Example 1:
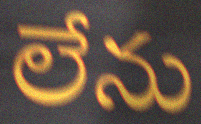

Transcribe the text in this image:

లేను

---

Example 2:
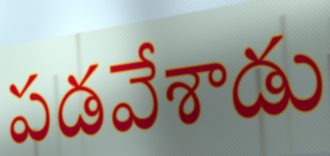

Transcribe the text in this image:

పడవేశాడు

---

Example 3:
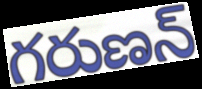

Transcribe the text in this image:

గరుణన్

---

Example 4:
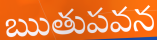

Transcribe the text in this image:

ఋతుపవన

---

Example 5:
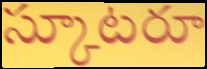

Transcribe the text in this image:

స్కూటరూ